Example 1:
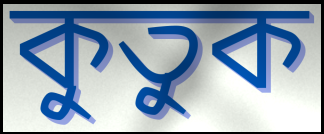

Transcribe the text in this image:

কুতুক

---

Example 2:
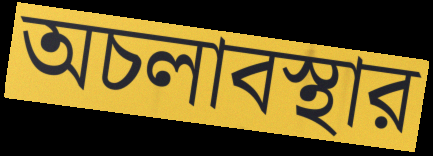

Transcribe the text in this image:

অচলাবস্থার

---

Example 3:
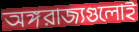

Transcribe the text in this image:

অঙ্গরাজ্যগুলোই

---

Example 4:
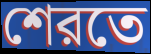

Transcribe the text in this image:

শেরতে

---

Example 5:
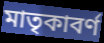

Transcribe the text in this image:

মাতৃকাবর্ণ